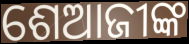
ଶେଆଜୀଙ୍କ